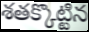
శతక్కొట్టిన